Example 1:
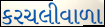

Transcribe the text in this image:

કરચલીવાળા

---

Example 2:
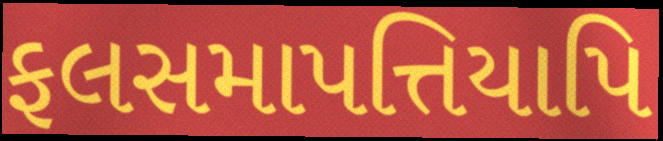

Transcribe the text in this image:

ફલસમાપત્તિયાપિ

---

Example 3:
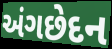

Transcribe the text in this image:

અંગછેદન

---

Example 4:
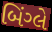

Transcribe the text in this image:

બિંગ્લે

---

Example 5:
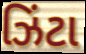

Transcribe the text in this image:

ઝિંટા